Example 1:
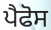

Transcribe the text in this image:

ਪੈਫੋਸ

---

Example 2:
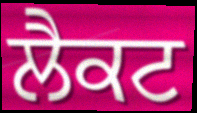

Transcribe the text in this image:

ਲੈਕਟ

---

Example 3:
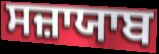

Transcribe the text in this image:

ਸਜ਼ਾਯਾਬ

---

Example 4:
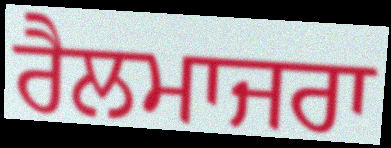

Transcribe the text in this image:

ਰੈਲਮਾਜਰਾ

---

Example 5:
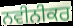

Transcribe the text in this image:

ਨਵੀਨੀਕਰ